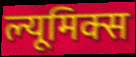
ल्यूमिक्स